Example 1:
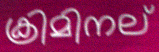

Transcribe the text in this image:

ക്രിമിനല്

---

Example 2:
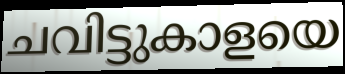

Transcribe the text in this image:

ചവിട്ടുകാളയെ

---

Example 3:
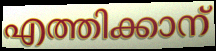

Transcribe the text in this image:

എത്തിക്കാന്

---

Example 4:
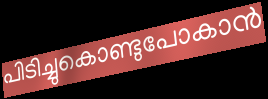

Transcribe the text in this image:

പിടിച്ചുകൊണ്ടുപോകാൻ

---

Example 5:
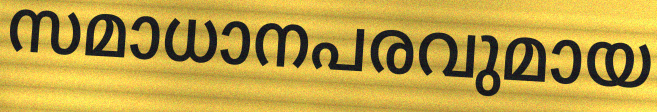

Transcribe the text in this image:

സമാധാനപരവുമായ